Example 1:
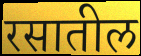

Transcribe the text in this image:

रसातील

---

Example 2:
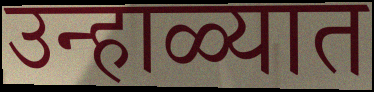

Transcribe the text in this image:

उन्हाळ्यात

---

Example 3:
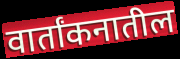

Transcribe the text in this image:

वार्तांकनातील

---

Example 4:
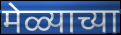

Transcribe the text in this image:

मेळ्याच्या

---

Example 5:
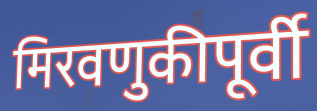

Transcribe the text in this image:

मिरवणुकीपूर्वी